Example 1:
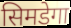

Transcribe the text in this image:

सिमडेगा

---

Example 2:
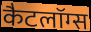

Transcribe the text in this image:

कैटलॉग्स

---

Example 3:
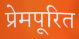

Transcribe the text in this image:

प्रेमपूरित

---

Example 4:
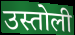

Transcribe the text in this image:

उस्तोली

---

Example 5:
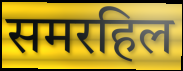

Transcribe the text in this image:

समरहिल